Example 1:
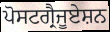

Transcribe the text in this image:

ਪੋਸਟਗ੍ਰੈਜੂਏਸ਼ਨ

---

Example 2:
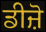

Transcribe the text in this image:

ਡੀਜ਼ੋ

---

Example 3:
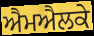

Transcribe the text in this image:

ਐਮਐਲਕੇ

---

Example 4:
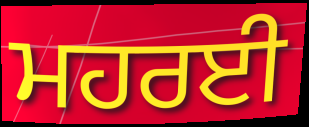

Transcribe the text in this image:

ਮਹਰਈ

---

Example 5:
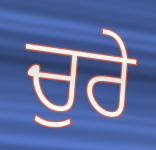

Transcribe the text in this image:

ਚੁਰੇ